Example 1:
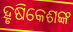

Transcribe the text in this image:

ହୃଷିକେଶଙ୍କ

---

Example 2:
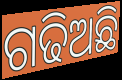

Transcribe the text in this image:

ଗଢିଅଛି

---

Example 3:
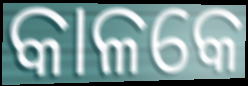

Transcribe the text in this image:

କାଳକେ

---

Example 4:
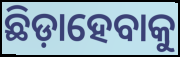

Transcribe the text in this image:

ଛିଡ଼ାହେବାକୁ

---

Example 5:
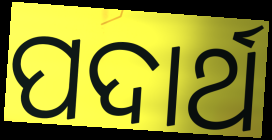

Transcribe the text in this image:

ପଦାର୍ଥ